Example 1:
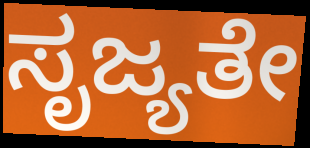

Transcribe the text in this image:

ಸೃಜ್ಯತೇ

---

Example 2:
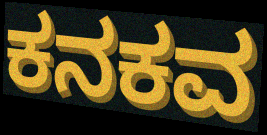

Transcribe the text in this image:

ಕನಕವ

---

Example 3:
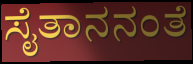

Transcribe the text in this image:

ಸೈತಾನನಂತೆ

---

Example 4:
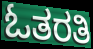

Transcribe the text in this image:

ಓತರತಿ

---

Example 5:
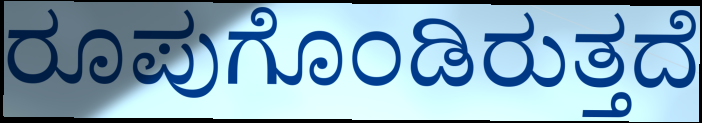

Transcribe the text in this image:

ರೂಪುಗೊಂಡಿರುತ್ತದೆ